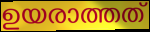
ഉയരാത്തത്